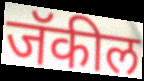
जॅकील